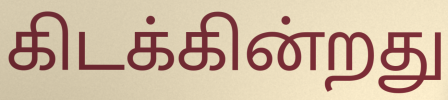
கிடக்கின்றது